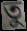
তু